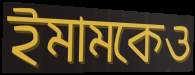
ইমামকেও